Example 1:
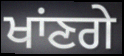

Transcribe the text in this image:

ਖਾਂਣਗੇ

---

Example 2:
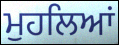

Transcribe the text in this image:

ਮੁਹਲਿਆਂ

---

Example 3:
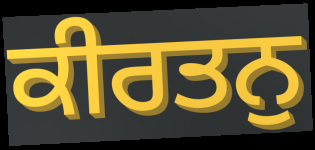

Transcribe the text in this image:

ਕੀਰਤਨੁ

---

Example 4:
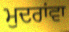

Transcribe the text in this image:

ਮੁਦਰਾਂਵਾ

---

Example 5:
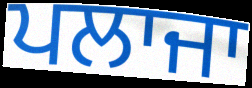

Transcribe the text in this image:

ਪਲਾਜਾ